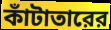
কাঁটাতারের